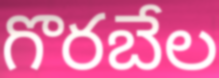
గొరబేల